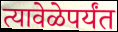
त्यावेळेपर्यंत